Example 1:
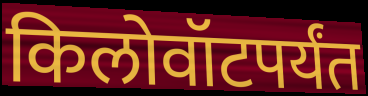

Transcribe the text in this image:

किलोवॉटपर्यंत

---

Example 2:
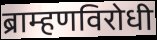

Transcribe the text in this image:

ब्राम्हणविरोधी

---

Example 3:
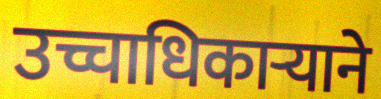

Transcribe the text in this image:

उच्चाधिकाऱ्याने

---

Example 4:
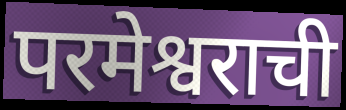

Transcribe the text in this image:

परमेश्वराची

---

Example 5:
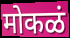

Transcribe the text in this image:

मोकळं